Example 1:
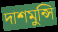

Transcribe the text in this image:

দাশমুন্সি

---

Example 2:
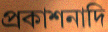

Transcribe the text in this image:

প্রকাশনাদি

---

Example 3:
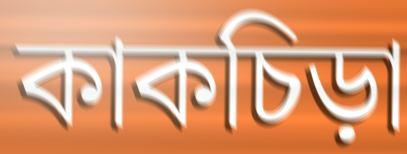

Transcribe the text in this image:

কাকচিড়া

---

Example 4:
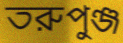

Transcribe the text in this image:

তরুপুঞ্জ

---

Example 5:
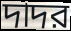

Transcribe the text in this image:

দাদর